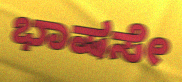
ಭಾಷಸೇ